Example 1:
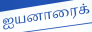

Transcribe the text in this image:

ஐயனாரைக்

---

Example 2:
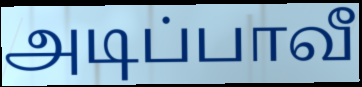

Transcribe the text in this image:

அடிப்பாவீ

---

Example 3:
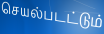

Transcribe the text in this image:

செயல்படட்டும்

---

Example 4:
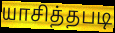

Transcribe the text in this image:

யாசித்தபடி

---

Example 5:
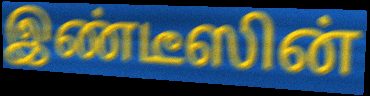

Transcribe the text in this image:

இண்டீஸின்